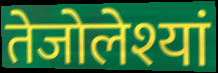
तेजोलेश्यां